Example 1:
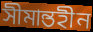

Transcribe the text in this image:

সীমান্তহীন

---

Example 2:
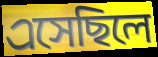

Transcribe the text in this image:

এসেছিলে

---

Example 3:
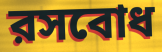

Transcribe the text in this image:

রসবোধ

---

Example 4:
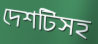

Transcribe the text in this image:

দেশটিসহ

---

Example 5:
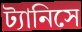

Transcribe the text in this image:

ট্যানিসে